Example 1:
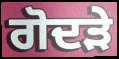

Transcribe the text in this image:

ਗੋਦੜੇ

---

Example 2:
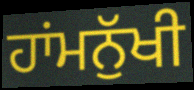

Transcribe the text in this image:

ਹਾਂਮਨੁੱਖੀ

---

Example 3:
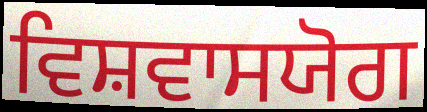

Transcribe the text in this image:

ਵਿਸ਼ਵਾਸਯੋਗ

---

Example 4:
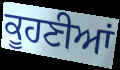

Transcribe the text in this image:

ਕੂਹਣੀਆਂ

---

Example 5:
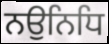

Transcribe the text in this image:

ਨਉਨਿਧਿ